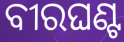
ବୀରଘଣ୍ଟ